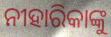
ନୀହାରିକାଙ୍କୁ